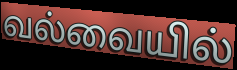
வல்வையில்